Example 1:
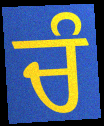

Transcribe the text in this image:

ਚੰ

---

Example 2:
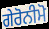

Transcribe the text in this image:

ਗੇਰੋਨੀਮੋ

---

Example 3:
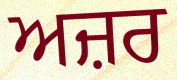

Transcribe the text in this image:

ਅਜ਼ਰ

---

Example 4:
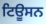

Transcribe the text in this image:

ਟਿਊਸਨ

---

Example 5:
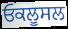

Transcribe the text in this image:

ਓਕਲੂਸਲ